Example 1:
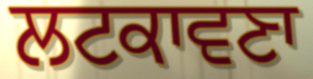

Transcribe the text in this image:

ਲਟਕਾਵਣਾ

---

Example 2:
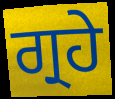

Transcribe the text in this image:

ਗ੍ਰਹੇ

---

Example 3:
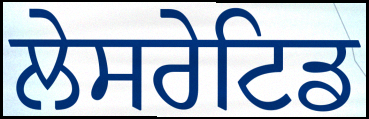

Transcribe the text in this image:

ਲੇਸਰੇਟਿਡ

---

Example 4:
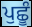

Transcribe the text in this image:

ਪੁਛੂੰ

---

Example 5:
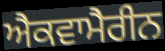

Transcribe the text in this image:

ਐਕਵਾਮੈਰੀਨ